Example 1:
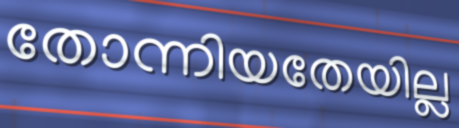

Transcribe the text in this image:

തോന്നിയതേയില്ല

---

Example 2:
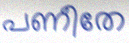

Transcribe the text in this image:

പണീതേ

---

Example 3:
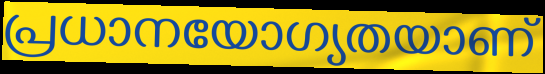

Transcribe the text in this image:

പ്രധാനയോഗ്യതയാണ്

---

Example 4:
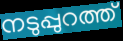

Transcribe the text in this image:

നടുപ്പുറത്ത്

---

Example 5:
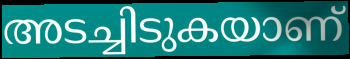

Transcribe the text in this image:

അടച്ചിടുകയാണ്